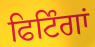
ਫਿਟਿੰਗਾਂ